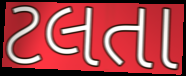
ટલતા